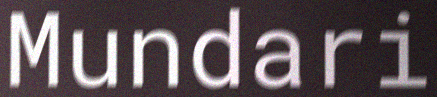
Mundari